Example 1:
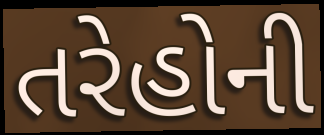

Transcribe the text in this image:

તરેહોની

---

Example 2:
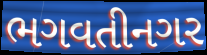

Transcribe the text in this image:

ભગવતીનગર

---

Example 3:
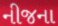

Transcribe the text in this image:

નીજના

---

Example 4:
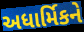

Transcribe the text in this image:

અધાર્મિકને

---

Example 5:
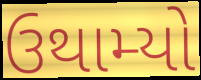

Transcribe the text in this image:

ઉથામ્યો